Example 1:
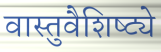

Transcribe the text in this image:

वास्तुवैशिष्ट्ये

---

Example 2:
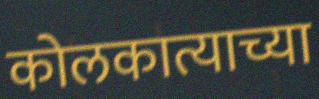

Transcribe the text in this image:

कोलकात्याच्या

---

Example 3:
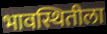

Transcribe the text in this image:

भावस्थितीला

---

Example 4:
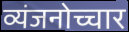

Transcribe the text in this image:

व्यंजनोच्चार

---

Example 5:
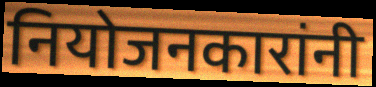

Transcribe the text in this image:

नियोजनकारांनी